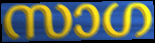
സാഗ